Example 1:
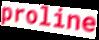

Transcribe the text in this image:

proline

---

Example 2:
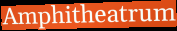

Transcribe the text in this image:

Amphitheatrum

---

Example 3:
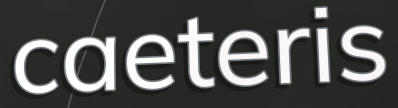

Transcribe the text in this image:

caeteris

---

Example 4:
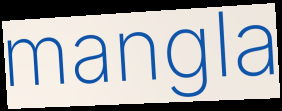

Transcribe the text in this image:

mangla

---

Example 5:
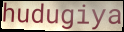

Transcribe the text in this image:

hudugiya